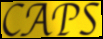
CAPS